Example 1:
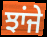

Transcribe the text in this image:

ਝਾਂਜੇ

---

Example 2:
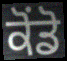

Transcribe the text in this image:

ਕੋਂਡੋ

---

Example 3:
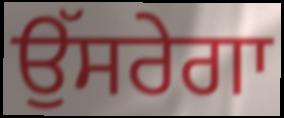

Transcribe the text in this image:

ਉੱਸਰੇਗਾ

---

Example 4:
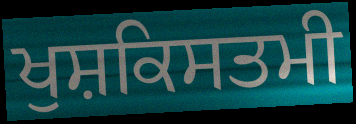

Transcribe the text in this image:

ਖੁਸ਼ਕਿਸਤਮੀ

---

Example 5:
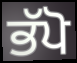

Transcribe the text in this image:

ਭੱਪੋ